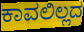
ಕಾವಲಿಲ್ಲದ